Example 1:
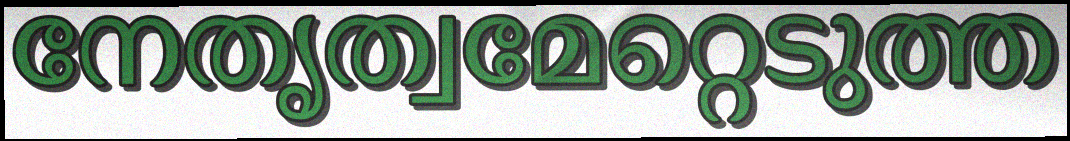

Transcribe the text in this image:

നേതൃത്വമേറ്റെടുത്ത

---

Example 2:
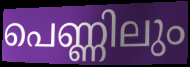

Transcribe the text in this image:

പെണ്ണിലും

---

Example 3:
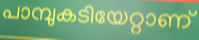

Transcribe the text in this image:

പാമ്പുകടിയേറ്റാണ്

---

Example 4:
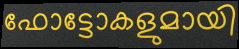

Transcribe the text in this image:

ഫോട്ടോകളുമായി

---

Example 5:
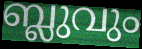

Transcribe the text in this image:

ബ്ലുവും